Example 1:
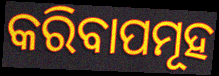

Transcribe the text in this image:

କରିବାପମୂହ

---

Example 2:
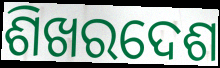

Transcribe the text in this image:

ଶିଖରଦେଶ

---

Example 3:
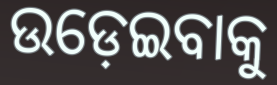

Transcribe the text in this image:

ଉଡ଼େଇବାକୁ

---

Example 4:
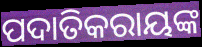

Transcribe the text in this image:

ପଦାତିକରାୟଙ୍କ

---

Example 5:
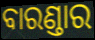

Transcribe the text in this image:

ବାରଣ୍ଡାର